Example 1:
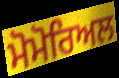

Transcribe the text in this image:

ਮੋਮੋਰਿਅਲ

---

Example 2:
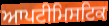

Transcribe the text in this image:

ਆਪਟੀਮਿਸਟਿਕ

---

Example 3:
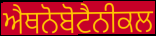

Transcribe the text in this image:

ਐਥਨੋਬੋਟੈਨੀਕਲ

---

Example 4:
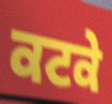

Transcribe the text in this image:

ਕਟਕੇ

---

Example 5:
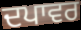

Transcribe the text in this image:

ਦਪਾਵਰ